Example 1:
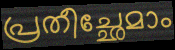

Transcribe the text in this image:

പ്രതീച്ഛേമാം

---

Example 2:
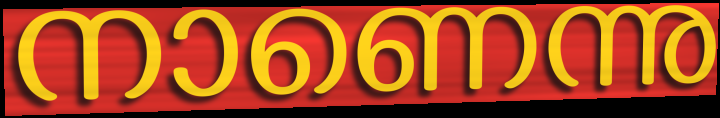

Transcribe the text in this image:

നാണെന്നു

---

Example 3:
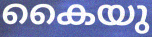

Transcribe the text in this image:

കൈയു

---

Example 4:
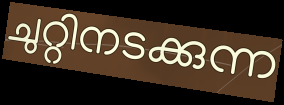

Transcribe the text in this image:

ചുറ്റിനടക്കുന്ന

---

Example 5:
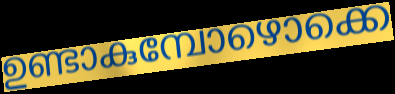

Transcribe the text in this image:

ഉണ്ടാകുമ്പോഴൊക്കെ